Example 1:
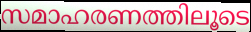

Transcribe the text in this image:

സമാഹരണത്തിലൂടെ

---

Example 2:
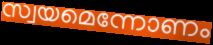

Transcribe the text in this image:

സ്വയമെന്നോണം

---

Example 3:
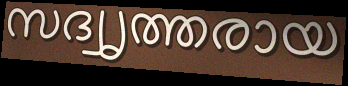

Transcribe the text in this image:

സദ്വൃത്തരായ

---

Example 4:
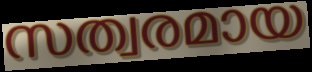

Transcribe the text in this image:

സത്വരമായ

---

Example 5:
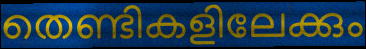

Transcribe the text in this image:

തെണ്ടികളിലേക്കും